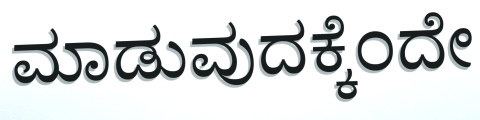
ಮಾಡುವುದಕ್ಕೆಂದೇ